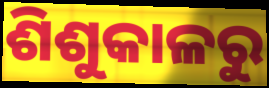
ଶିଶୁକାଳରୁ